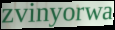
zvinyorwa